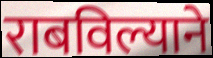
राबविल्याने